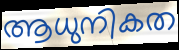
ആധുനികത